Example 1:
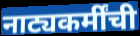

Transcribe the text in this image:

नाट्यकर्मींची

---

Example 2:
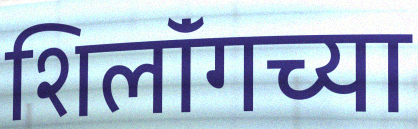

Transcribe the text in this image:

शिलॉंगच्या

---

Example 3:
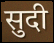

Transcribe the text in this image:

सुदी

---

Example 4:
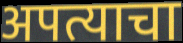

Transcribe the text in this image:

अपत्याचा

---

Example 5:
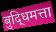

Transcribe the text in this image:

बुद्धिमत्ता